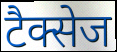
टैक्सेज